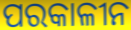
ପରକାଳୀନ